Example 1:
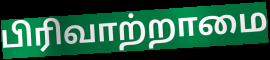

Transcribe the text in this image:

பிரிவாற்றாமை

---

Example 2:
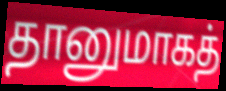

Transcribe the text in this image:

தானுமாகத்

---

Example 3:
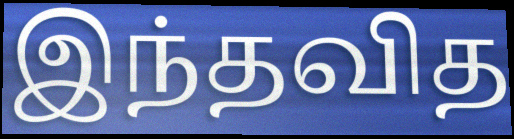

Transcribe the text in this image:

இந்தவித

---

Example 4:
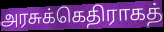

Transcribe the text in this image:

அரசுக்கெதிராகத்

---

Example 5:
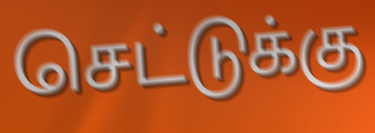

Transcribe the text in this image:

செட்டுக்கு